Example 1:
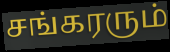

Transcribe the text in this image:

சங்கரரும்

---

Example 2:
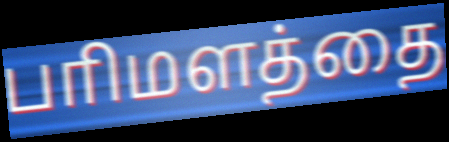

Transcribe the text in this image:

பரிமளத்தை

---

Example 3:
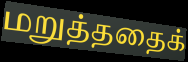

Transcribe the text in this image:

மறுத்ததைக்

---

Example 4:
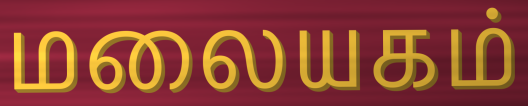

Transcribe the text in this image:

மலையகம்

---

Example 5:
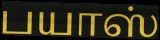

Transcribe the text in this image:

பயாஸ்